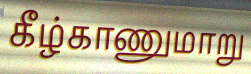
கீழ்காணுமாறு